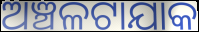
ଅଞ୍ଚଳଟାଯାକ